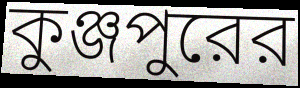
কুঞ্জপুরের